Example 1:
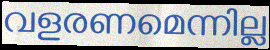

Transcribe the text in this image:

വളരണമെന്നില്ല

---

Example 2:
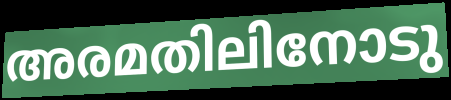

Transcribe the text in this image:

അരമതിലിനോടു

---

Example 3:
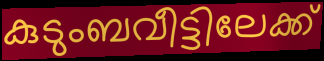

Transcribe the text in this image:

കുടുംബവീട്ടിലേക്ക്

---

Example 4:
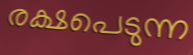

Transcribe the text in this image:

രക്ഷപെടുന്ന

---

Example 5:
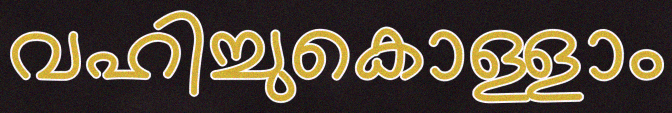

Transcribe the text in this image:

വഹിച്ചുകൊള്ളാം